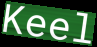
Keel